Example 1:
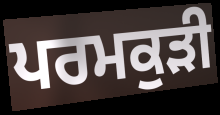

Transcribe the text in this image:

ਪਰਮਕੁੜੀ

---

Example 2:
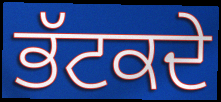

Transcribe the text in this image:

ਭੱਟਕਦੇ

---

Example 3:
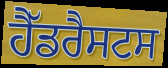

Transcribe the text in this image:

ਹੈੱਡਰੈਸਟਸ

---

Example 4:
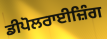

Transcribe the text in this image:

ਡੀਪੋਲਰਾਈਜ਼ਿੰਗ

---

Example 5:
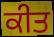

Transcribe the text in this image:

ਕੀਤ